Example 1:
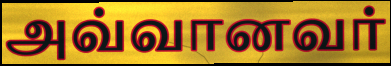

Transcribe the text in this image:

அவ்வானவர்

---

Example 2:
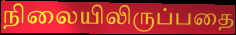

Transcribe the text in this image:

நிலையிலிருப்பதை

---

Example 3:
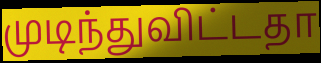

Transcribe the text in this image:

முடிந்துவிட்டதா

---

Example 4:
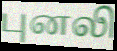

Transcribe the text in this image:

புனலி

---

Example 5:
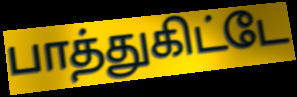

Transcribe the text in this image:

பாத்துகிட்டே